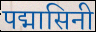
पद्मासिनी